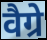
वैग्रे